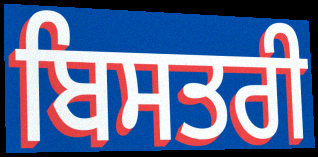
ਬਿਸਤਰੀ